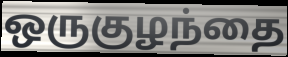
ஒருகுழந்தை